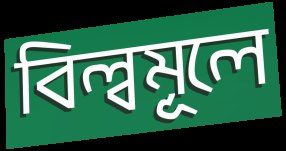
বিল্বমূলে